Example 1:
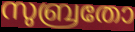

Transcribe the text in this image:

സുബ്രതോ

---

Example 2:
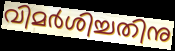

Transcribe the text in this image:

വിമർശിച്ചതിനു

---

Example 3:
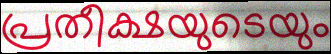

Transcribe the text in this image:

പ്രതീക്ഷയുടെയും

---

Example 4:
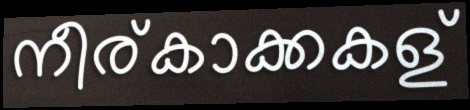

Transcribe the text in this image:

നീര്കാക്കകള്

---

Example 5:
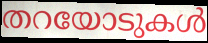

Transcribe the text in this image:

തറയോടുകൾ